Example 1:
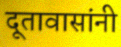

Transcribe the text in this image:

दूतावासांनी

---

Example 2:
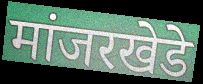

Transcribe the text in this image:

मांजरखेडे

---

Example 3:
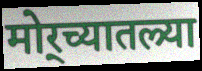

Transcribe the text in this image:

मोर्च्यातल्या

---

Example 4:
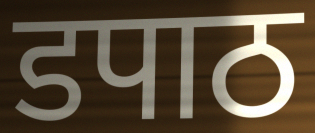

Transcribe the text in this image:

डपाठ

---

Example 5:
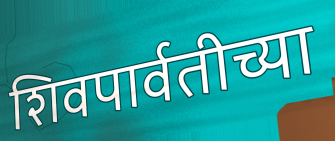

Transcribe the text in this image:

शिवपार्वतीच्या